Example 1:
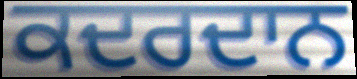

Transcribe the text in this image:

ਕਦਰਦਾਨ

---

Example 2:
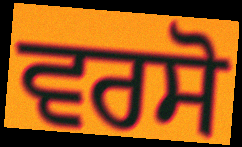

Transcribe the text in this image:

ਵਰਸੋ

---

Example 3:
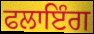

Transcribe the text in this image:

ਫਲਾਇੰਗ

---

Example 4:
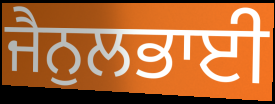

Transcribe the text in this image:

ਜੈਨੁਲਭਾਈ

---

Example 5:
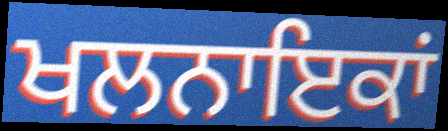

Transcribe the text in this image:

ਖਲਨਾਇਕਾਂ